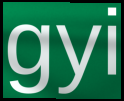
gyi